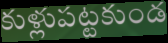
కుళ్లుపట్టకుండ